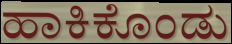
ಹಾಕಿಕೊಂಡು